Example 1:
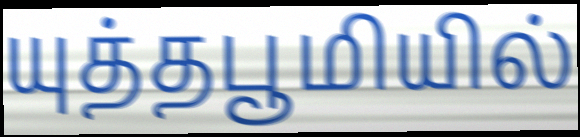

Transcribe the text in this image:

யுத்தபூமியில்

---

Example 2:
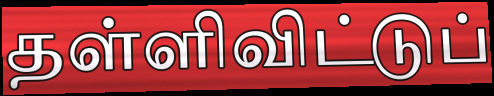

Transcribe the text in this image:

தள்ளிவிட்டுப்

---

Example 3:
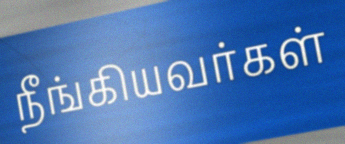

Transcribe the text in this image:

நீங்கியவர்கள்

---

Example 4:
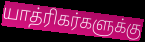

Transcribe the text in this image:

யாத்ரிகர்களுக்கு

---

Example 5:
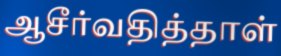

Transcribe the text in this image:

ஆசீர்வதித்தாள்